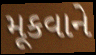
મૂકવાને